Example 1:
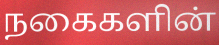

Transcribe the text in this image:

நகைகளின்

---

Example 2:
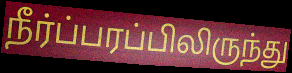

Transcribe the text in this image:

நீர்ப்பரப்பிலிருந்து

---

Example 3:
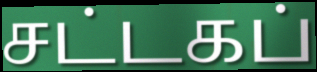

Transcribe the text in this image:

சட்டகப்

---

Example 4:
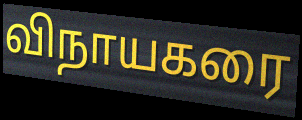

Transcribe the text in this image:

விநாயகரை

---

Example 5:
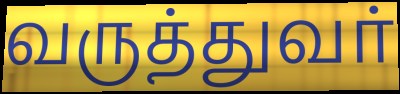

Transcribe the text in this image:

வருத்துவர்